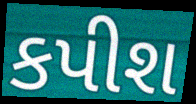
કપીશ